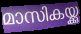
മാസികയ്ക്കു